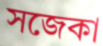
সজেকা